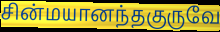
சின்மயானந்தகுருவே